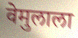
वेमुलाला